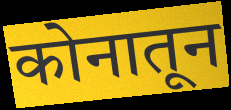
कोनातून